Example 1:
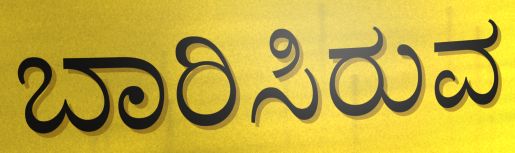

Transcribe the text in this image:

ಬಾರಿಸಿರುವ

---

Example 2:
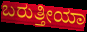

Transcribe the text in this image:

ಬರುತ್ತೀಯಾ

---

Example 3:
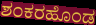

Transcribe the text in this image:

ಶಂಕರಹೊಂಡ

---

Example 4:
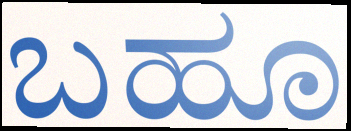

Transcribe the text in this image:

ಬಹೂ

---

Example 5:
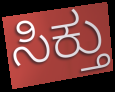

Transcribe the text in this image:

ಸಿಕ್ತು